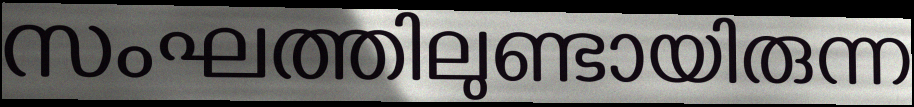
സംഘത്തിലുണ്ടായിരുന്ന